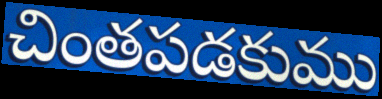
చింతపడకుము